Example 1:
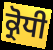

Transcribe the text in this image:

ਕ੍ਰੋਧੀ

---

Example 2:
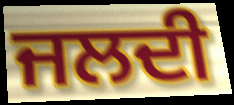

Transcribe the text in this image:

ਜਲਦੀ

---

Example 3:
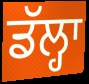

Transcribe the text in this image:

ਡੱਲ੍ਹਾ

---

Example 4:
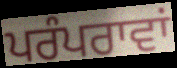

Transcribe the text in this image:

ਪਰੰਪਰਾਵਾਂ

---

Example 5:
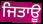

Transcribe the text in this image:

ਜਿਤਾਊ